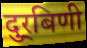
दुर्बिणी